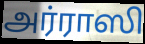
அர்ராஸி